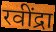
रवींद्रा